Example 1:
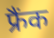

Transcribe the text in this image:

फ्रैंक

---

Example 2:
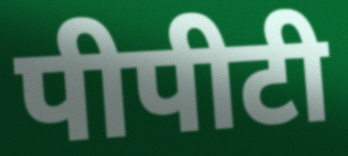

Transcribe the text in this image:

पीपीटी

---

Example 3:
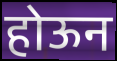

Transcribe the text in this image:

होऊन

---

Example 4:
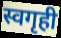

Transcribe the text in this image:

स्वगृही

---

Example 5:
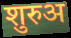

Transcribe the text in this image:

शुरुअ